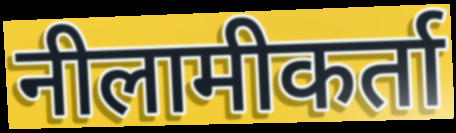
नीलामीकर्ता